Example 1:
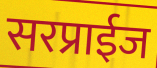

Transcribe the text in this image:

सरप्राईज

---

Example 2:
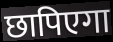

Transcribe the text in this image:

छापिएगा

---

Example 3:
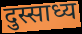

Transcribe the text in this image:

दुस्साध्य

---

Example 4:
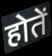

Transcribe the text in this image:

होतें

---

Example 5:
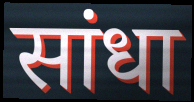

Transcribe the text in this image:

सांधा